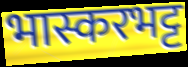
भास्करभट्ट